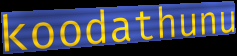
koodathunu